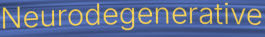
Neurodegenerative